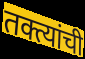
तक्त्यांची